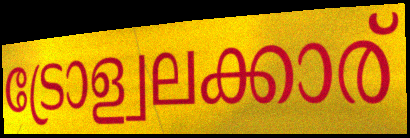
ട്രോള്വലക്കാര്